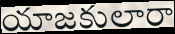
యాజకులారా